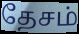
தேசம்